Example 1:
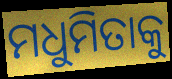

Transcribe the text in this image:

ମଧୁମିତାକୁ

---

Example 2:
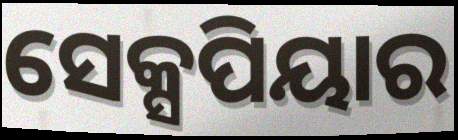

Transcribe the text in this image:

ସେକ୍ସପିୟାର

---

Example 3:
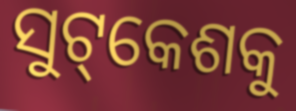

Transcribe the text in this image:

ସୁଟ୍‌କେଶକୁ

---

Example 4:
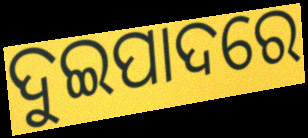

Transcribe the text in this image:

ଦୁଇପାଦରେ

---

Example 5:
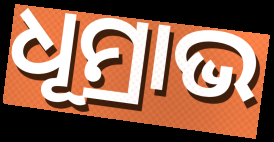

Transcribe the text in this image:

ଧୂମ୍ରାଭ